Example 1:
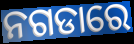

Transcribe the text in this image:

ନଗଡାରେ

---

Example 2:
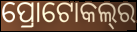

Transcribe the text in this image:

ପ୍ରୋଟୋକଲ୍‌ର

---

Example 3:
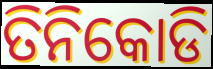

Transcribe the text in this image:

ତିନିକୋଡି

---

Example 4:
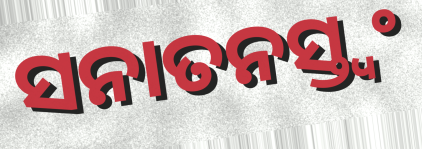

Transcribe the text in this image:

ସନାତନସ୍ତ୍ୱଂ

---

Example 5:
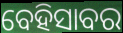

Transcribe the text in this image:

ବେହିସାବର